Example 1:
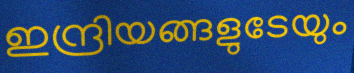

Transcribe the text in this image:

ഇന്ദ്രിയങ്ങളുടേയും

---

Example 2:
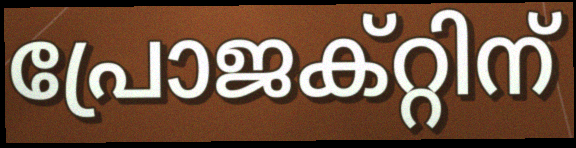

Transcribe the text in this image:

പ്രോജക്റ്റിന്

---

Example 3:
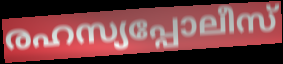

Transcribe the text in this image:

രഹസ്യപ്പോലീസ്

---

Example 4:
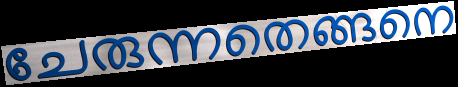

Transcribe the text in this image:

ചേരുന്നതെങ്ങനെ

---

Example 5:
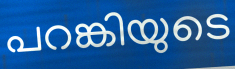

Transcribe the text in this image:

പറങ്കിയുടെ